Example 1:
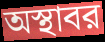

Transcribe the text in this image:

অস্থাবর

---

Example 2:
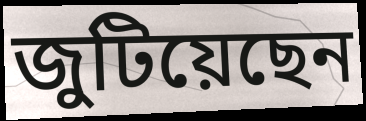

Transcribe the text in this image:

জুটিয়েছেন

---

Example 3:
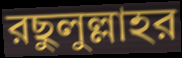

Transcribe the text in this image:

রছুলুল্লাহর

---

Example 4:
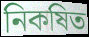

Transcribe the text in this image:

নিকষিত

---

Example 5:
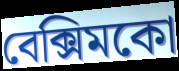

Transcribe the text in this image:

বেক্সিমকো